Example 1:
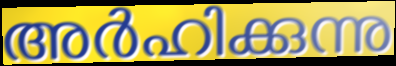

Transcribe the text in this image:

അർഹിക്കുന്നു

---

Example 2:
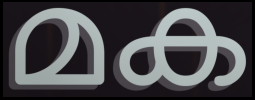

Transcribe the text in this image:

മക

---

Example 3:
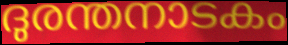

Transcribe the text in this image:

ദുരന്തനാടകം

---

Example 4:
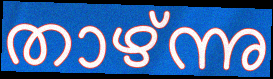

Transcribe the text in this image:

താഴ്ന്നു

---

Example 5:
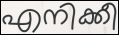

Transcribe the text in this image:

എനിക്കീ